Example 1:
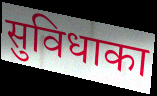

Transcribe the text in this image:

सुविधाका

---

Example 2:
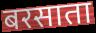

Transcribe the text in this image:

बरसाता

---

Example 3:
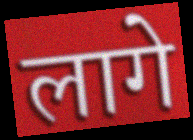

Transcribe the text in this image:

लागे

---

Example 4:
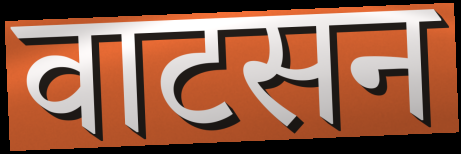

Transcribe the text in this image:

वाटसन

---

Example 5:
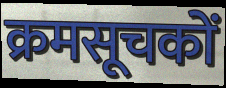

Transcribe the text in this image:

क्रमसूचकों